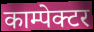
काम्पेक्टर